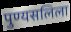
पुण्यसलिला